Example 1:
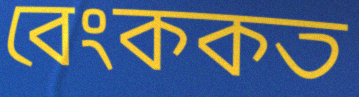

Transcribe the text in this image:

বেংককত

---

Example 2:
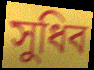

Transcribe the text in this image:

সুধিব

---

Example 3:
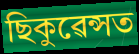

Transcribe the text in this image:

ছিকুৱেন্সত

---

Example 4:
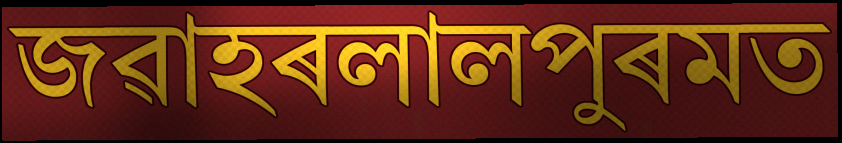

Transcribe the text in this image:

জৱাহৰলালপুৰমত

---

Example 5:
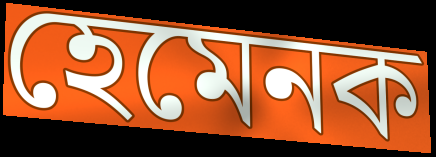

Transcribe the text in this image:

হেমেনক